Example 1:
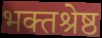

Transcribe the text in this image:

भक्तश्रेष्ठ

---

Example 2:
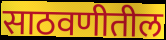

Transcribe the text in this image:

साठवणीतील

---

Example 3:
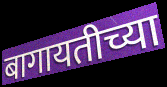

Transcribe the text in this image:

बागायतीच्या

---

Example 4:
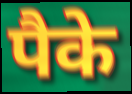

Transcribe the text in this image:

पैके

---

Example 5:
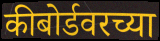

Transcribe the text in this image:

कीबोर्डवरच्या